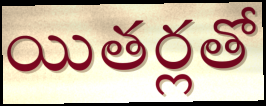
యితర్లతో